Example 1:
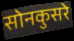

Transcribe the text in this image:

सोनकुसरे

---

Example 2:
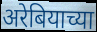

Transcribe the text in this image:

अरेबियाच्या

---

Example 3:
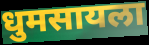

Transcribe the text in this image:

धुमसायला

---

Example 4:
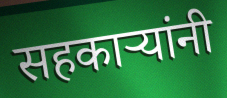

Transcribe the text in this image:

सहकाऱ्यांनी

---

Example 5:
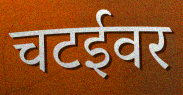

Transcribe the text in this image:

चटईवर